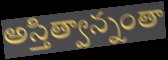
అస్తిత్వాన్నంతా